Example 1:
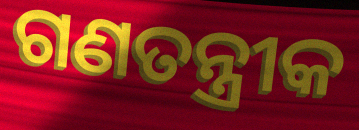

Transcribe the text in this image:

ଗଣତନ୍ତ୍ରୀକ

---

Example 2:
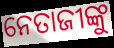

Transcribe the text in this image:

ନେତାଜୀଙ୍କୁ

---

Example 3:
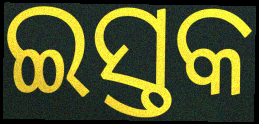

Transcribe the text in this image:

ଇସ୍ତକ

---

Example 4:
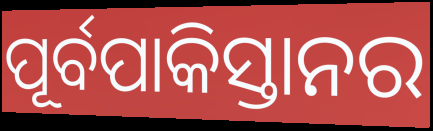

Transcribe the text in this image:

ପୂର୍ବପାକିସ୍ତାନର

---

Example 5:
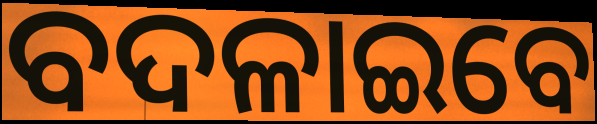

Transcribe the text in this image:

ବଦଳାଇବେ